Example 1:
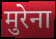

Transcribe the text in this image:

मुरेना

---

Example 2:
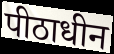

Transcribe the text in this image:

पीठाधीन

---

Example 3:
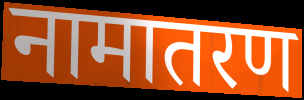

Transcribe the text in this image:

नामातरण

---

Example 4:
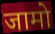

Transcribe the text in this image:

जामो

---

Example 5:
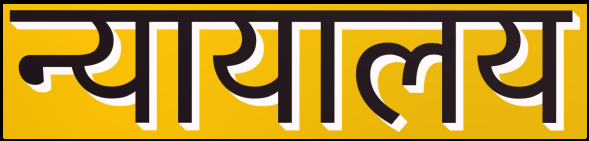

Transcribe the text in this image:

न्यायालय